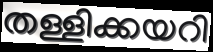
തള്ളിക്കയറി